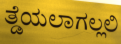
ತ್ಡೆಯಲಾಗಲ್ಲಲಿ